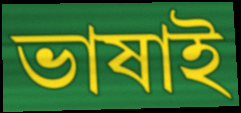
ভাষাই